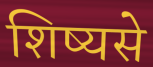
शिष्यसे